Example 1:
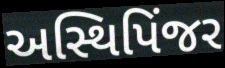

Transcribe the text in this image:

અસ્થિપિંજર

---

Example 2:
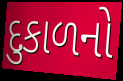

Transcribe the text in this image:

દુકાળનો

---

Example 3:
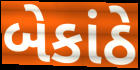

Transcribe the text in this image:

બેકાંઠે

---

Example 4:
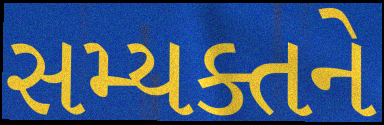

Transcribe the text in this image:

સમ્યક્તને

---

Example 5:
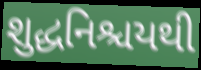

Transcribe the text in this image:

શુદ્ધનિશ્ચયથી